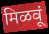
मिळवूं